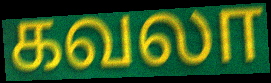
கவலா